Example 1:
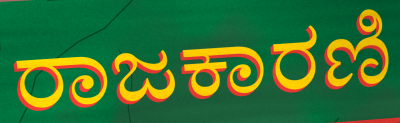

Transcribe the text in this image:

ರಾಜಕಾರಣಿ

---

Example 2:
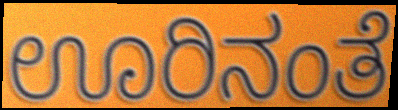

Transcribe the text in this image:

ಊರಿನಂತೆ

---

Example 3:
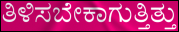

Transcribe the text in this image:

ತಿಳಿಸಬೇಕಾಗುತ್ತಿತ್ತು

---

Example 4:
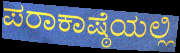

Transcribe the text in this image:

ಪರಾಕಾಷ್ಠೆಯಲ್ಲಿ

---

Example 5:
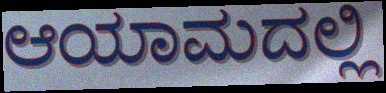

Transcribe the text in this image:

ಆಯಾಮದಲ್ಲಿ